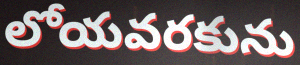
లోయవరకును